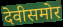
देवीसमोर